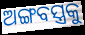
ଅଙ୍ଗବସ୍ତ୍ରକୁ